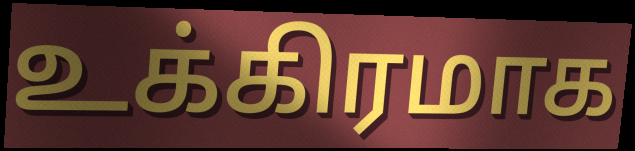
உக்கிரமாக